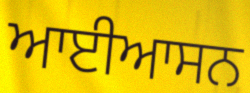
ਆਈਆਸਨ